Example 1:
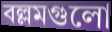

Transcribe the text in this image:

বল্লমগুলো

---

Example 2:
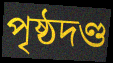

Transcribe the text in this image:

পৃষ্ঠদণ্ড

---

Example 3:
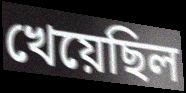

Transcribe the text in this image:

খেয়েছিল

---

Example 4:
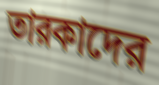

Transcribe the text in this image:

তারকাদের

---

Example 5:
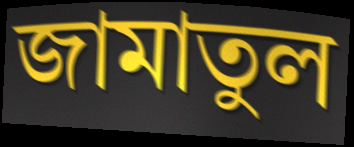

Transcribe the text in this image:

জামাতুল